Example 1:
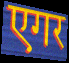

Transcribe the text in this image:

एगर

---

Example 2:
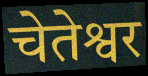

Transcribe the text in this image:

चेतेश्वर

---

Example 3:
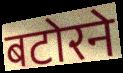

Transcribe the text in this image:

बटोरने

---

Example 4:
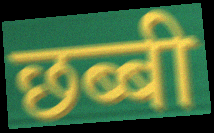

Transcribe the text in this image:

छब्बी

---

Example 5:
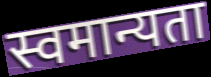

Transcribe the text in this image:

स्वमान्यता